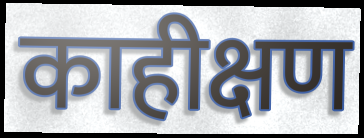
काहीक्षण